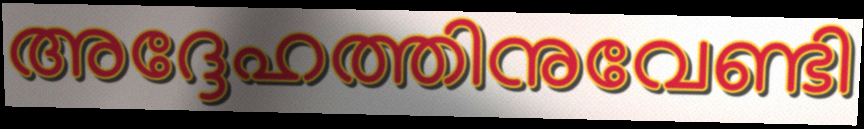
അദ്ദേഹത്തിനുവേണ്ടി